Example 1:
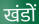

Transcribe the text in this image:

खंडों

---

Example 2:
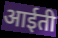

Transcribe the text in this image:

आईती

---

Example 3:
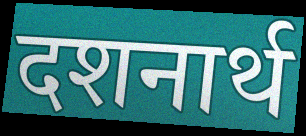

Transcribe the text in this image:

दशनार्थ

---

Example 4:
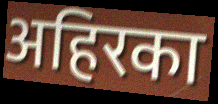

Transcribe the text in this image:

अहिरका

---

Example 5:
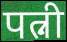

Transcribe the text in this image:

पत्नी